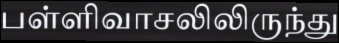
பள்ளிவாசலிலிருந்து